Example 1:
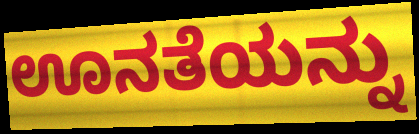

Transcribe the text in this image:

ಊನತೆಯನ್ನು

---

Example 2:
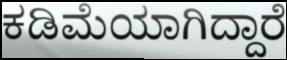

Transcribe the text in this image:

ಕಡಿಮೆಯಾಗಿದ್ದಾರೆ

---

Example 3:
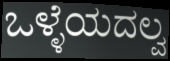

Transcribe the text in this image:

ಒಳ್ಳೆಯದಲ್ವ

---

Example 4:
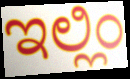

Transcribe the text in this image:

ಇಲ್ಲಿಂ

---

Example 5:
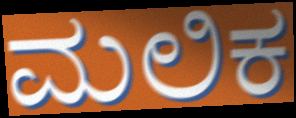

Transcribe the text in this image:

ಮಲಿಕ